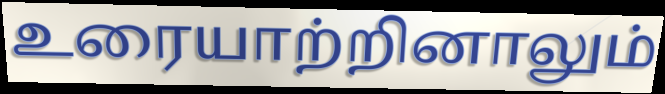
உரையாற்றினாலும்